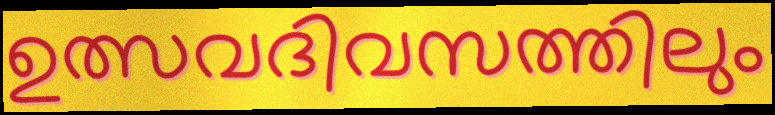
ഉത്സവദിവസത്തിലും